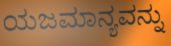
ಯಜಮಾನ್ಯವನ್ನು